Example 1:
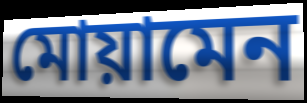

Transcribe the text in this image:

মোয়ামেন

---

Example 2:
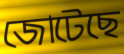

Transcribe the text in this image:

জোটেছে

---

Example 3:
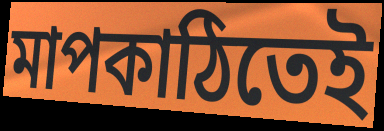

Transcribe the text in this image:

মাপকাঠিতেই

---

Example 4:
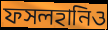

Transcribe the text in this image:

ফসলহানিও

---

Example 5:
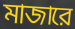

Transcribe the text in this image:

মাজারে